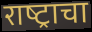
राष्ट्राचा